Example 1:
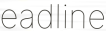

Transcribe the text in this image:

eadline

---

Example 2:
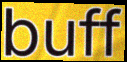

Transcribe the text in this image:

buff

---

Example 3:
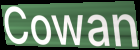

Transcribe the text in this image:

Cowan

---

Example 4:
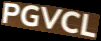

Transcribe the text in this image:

PGVCL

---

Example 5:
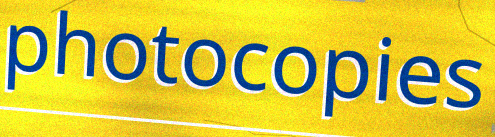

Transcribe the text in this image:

photocopies